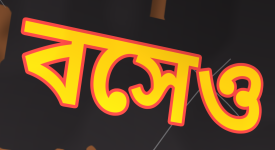
বসেও